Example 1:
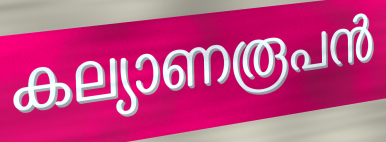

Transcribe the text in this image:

കല്യാണരൂപൻ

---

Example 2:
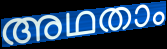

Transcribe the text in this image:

അഥതാം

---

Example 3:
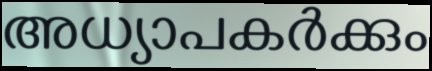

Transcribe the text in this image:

അധ്യാപകർക്കും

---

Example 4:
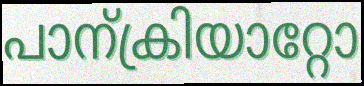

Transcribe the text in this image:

പാന്ക്രിയാറ്റോ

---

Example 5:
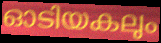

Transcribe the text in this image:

ഓടിയകലും